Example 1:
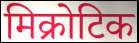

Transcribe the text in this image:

मिक्रोटिक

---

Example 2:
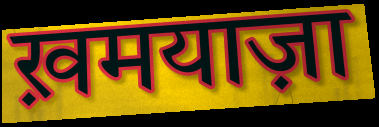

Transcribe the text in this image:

ख़मयाज़ा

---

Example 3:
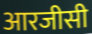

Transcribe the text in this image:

आरजीसी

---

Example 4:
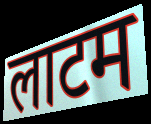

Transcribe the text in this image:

लाटम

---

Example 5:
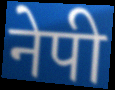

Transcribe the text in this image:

नेपी